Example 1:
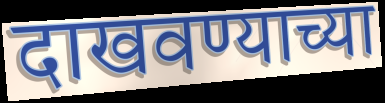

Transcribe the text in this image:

दाखवण्याच्या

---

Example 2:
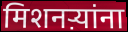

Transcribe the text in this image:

मिशनऱ्‍यांना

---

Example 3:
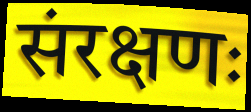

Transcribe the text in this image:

संरक्षणः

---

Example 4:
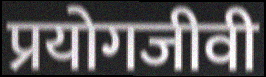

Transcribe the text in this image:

प्रयोगजीवी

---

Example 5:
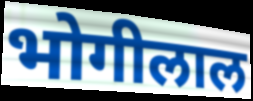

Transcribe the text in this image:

भोगीलाल